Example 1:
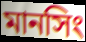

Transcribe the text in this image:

মানসিং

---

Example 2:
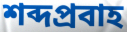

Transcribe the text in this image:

শব্দপ্রবাহ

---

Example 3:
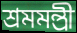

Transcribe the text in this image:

শ্রমমন্ত্রী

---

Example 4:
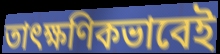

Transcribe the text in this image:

তাৎক্ষণিকভাবেই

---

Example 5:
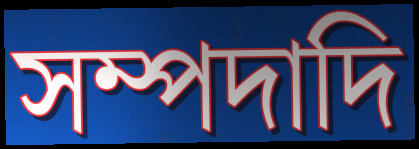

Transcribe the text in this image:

সম্পদাদি